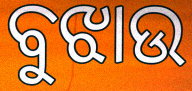
ବୁଝାଉ